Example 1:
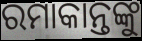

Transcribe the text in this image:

ରମାକାନ୍ତଙ୍କୁ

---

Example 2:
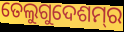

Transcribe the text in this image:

ତେଲୁଗୁଦେଶମ୍‌ର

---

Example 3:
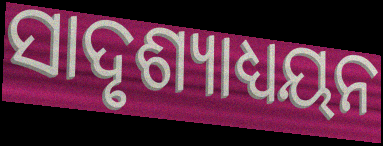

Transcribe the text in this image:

ସାଦୃଶ୍ୟାଧ୍ୟୟନ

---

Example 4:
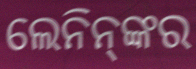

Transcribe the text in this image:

ଲେନିନ୍‌ଙ୍କର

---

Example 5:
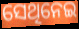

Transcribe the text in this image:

ସେଥିନେଇ